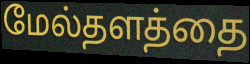
மேல்தளத்தை